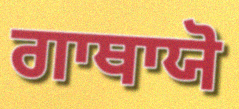
ਗਾਥਾਯੋ